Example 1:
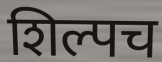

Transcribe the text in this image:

शिल्पच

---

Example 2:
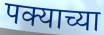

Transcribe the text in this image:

पक्याच्या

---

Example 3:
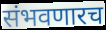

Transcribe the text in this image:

संभवणारच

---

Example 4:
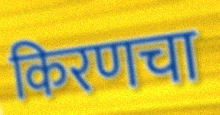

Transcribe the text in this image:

किरणचा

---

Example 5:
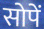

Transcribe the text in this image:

सोपें